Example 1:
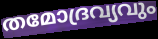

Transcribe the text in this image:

തമോദ്രവ്യവും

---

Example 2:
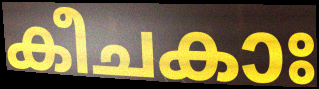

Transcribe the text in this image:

കീചകാഃ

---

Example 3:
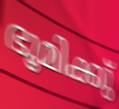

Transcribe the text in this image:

ഭൂമിക്കു്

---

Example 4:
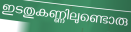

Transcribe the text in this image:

ഇടതുകണ്ണിലുണ്ടൊരു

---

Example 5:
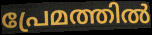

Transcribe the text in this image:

പ്രേമത്തിൽ